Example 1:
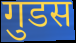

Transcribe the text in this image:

गुडस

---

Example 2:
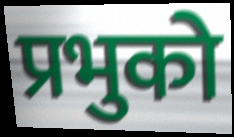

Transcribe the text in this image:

प्रभुको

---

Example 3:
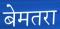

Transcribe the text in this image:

बेमतरा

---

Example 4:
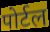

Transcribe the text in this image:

पोर्टल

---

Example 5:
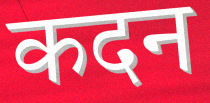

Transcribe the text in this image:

कदन